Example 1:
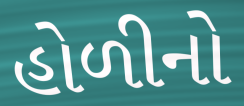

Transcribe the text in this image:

હોળીનો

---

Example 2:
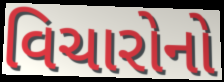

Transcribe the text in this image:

વિચારોનો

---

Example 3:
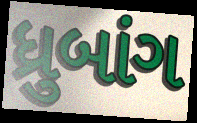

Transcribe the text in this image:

ધ્રુબાંગ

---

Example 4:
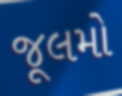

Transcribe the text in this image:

જૂલમો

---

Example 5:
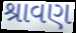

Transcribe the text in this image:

શ્રાવણ